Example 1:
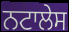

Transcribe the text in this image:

ਨਟਾਲੇਸ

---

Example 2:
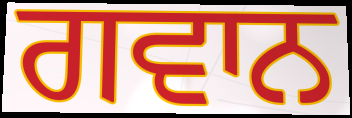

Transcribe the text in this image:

ਗਵਾਨ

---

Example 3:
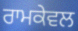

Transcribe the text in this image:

ਰਾਮਕੇਵਲ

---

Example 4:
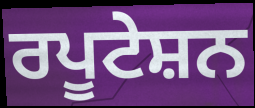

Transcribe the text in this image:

ਰਪੂਟੇਸ਼ਨ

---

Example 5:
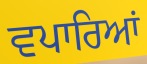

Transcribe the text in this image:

ਵਪਾਰਿਆਂ